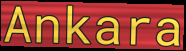
Ankara